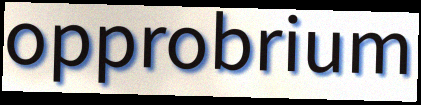
opprobrium